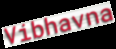
Vibhavna